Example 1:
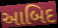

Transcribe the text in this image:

આબિદ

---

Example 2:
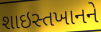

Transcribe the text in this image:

શાઇસ્તખાનને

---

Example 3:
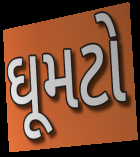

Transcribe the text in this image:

ઘૂમટો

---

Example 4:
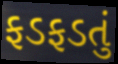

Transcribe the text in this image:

ફડફડતું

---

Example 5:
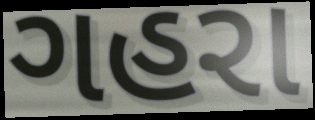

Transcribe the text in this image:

ગહરા